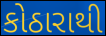
કોઠારાથી